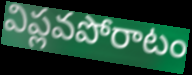
విప్లవపోరాటం